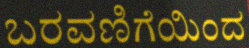
ಬರವಣಿಗೆಯಿಂದ